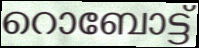
റൊബോട്ട്